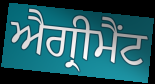
ਐਗ੍ਰੀਮੈਂਟ